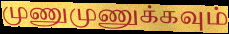
முணுமுணுக்கவும்